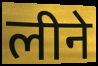
लीने